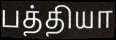
பத்தியா